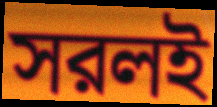
সরলই